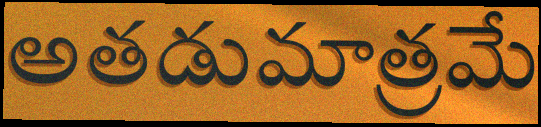
అతడుమాత్రమే